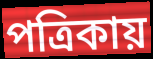
পত্রিকায়